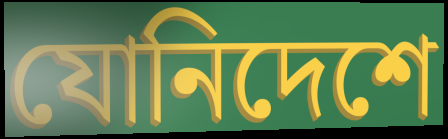
যোনিদেশে